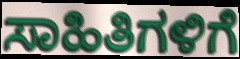
ಸಾಹಿತಿಗಳಿಗೆ